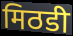
मिठडी